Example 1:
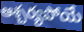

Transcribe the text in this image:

ఆశ్చర్యపోయే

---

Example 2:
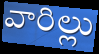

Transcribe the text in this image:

వారిల్లు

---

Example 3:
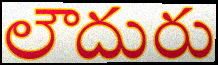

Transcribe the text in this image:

లౌదురు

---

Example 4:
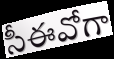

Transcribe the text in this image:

సీఈవోగా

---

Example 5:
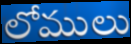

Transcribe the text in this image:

లోములు